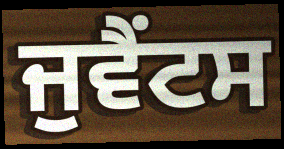
ਜੁਵੈਂਟਸ